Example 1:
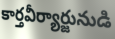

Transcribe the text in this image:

కార్తవీర్యార్జునుడి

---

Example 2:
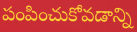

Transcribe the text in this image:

పంపించుకోవడాన్ని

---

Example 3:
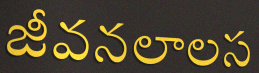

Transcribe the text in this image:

జీవనలాలస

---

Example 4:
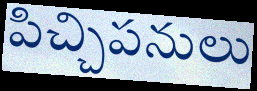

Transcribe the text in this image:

పిచ్చిపనులు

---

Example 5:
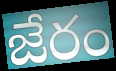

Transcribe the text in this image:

జేరం